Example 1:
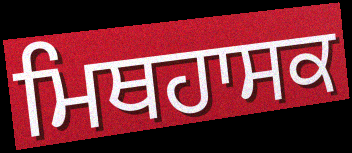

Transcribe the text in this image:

ਮਿਥਹਾਸਕ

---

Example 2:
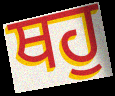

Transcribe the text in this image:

ਥਹੁ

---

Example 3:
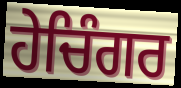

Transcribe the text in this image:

ਹੇਚਿੰਗਰ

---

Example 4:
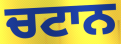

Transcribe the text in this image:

ਚਟਾਨ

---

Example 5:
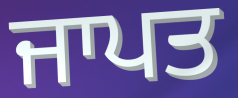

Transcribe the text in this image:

ਜਾਪਤ